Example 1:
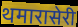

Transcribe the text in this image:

थमारासेरी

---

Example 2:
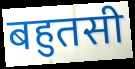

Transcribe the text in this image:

बहुतसी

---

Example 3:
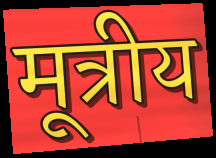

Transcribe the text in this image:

मूत्रीय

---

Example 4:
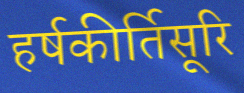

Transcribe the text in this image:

हर्षकीर्तिसूरि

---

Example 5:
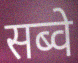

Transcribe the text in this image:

सब्वे